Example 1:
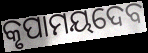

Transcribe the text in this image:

କୃପାମୟଦେବ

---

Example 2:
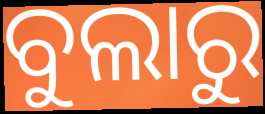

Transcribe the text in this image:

ବୁଲାରୁ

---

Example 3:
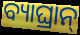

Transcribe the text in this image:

ବ୍ୟାଘ୍ରାନ୍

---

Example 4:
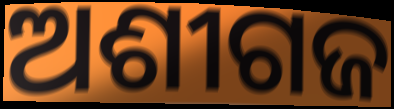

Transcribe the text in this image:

ଅଶୀଗଜ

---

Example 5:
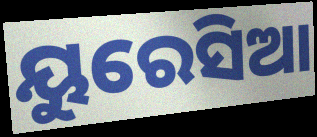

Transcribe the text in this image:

ୟୁରେସିଆ